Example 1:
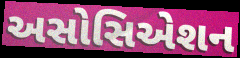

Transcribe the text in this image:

અસોસિએશન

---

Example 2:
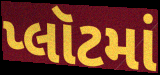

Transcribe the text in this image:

પ્લૉટમાં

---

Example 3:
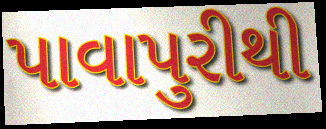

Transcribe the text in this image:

પાવાપુરીથી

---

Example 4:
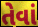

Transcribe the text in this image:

તેવાં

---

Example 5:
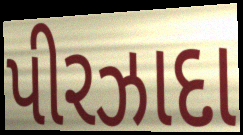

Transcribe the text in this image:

પીરઝાદા